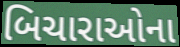
બિચારાઓના